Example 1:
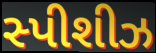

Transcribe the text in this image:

સ્પીશીઝ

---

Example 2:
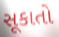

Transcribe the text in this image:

સૂકાતો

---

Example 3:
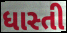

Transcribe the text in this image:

ધાસ્તી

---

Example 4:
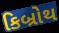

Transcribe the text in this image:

કિબ્રોથ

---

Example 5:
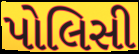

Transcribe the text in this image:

પોલિસી